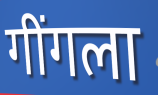
गींगला